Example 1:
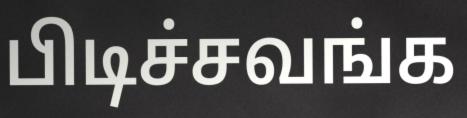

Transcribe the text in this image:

பிடிச்சவங்க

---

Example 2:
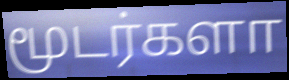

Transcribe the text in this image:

மூடர்களா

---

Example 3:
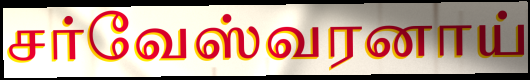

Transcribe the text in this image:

சர்வேஸ்வரனாய்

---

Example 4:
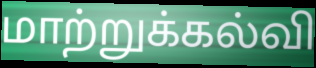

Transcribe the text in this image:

மாற்றுக்கல்வி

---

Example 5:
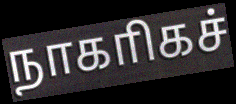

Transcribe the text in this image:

நாகரிகச்